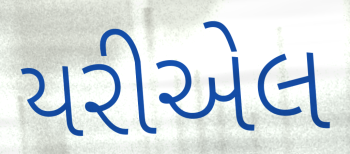
યરીએલ